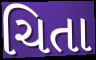
ચિતા